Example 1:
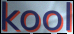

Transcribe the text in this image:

kool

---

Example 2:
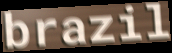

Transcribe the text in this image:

brazil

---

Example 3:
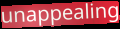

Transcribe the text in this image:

unappealing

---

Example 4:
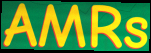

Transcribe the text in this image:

AMRs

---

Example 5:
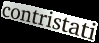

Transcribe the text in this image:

contristati